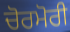
ਚੋਰਮੋਰੀ